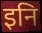
इनि